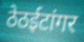
ठेठईटांगर